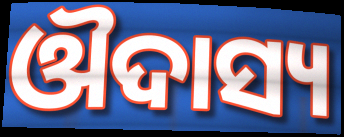
ଔଦାସ୍ୟ